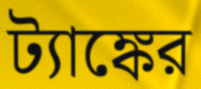
ট্যাঙ্কের